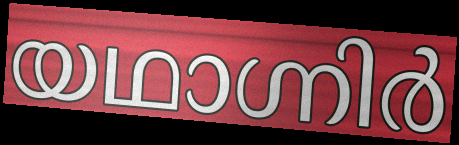
യഥാഗ്നിർ